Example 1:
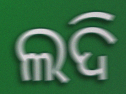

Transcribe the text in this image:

ଲଦି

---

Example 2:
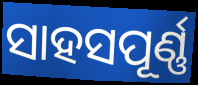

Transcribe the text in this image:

ସାହସପୂର୍ଣ୍ଣ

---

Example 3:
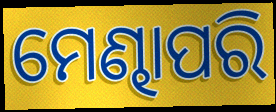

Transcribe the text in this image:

ମେଣ୍ଢାପରି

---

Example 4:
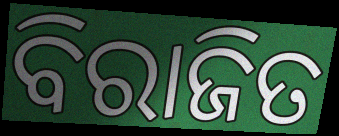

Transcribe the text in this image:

ବିରାଜିତ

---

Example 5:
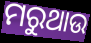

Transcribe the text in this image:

ମରୁଥାଉ